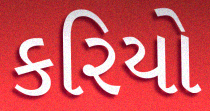
કરિયો